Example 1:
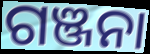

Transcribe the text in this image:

ଗଞ୍ଜନା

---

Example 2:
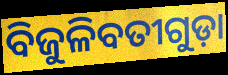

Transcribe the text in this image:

ବିଜୁଳିବତୀଗୁଡ଼ା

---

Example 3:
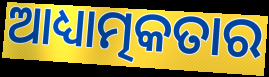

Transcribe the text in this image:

ଆଧ୍ୟାତ୍ମକତାର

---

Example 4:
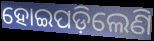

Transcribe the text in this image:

ହୋଇପଡ଼ିଲେଣି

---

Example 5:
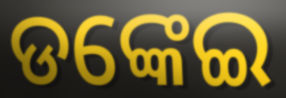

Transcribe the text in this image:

ଡଙ୍କେଇ